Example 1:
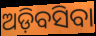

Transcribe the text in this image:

ଅଡ଼ିବସିବା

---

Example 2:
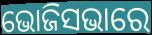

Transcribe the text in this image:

ଭୋଜିସଭାରେ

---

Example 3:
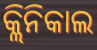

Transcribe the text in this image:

କ୍ଲିନିକାଲ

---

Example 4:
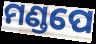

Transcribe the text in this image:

ମଣ୍ଡପେ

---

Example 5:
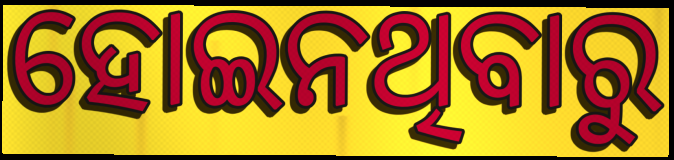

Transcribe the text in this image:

ହୋଇନଥିବାରୁ